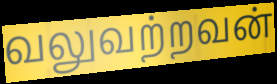
வலுவற்றவன்